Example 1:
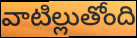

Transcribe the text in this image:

వాటిల్లుతోంది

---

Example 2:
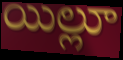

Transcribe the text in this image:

యిల్లూ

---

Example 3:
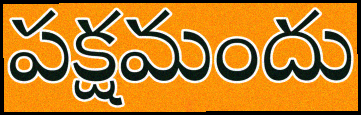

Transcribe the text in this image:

పక్షమందు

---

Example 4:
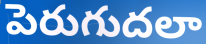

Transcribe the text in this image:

పెరుగుదలా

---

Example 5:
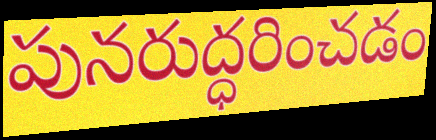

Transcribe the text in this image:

పునరుద్ధరించడం